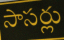
సాసర్లు